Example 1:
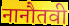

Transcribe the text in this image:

नानौतवी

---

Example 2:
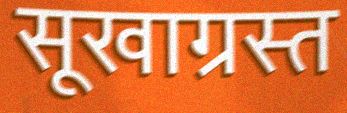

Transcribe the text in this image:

सूखाग्रस्त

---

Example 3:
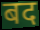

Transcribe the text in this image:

बद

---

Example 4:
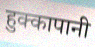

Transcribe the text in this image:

हुक्कापानी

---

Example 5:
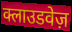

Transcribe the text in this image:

क्लाउडवेज़